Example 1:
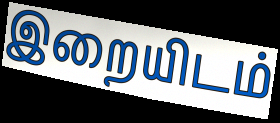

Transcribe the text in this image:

இறையிடம்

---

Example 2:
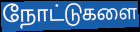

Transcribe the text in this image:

நோட்டுகளை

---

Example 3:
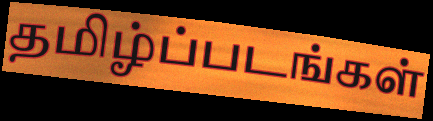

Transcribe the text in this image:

தமிழ்ப்படங்கள்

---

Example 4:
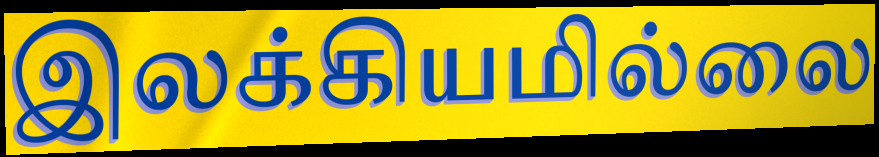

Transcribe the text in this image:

இலக்கியமில்லை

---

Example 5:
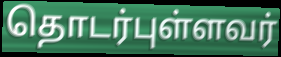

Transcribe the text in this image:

தொடர்புள்ளவர்